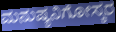
ಮನುಷ್ಯನಿಗೋಸ್ಕರ